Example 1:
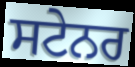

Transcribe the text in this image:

ਸਟੇਨਰ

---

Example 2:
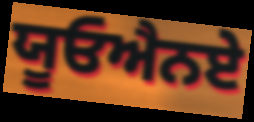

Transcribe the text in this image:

ਯੂਓਐਨਏ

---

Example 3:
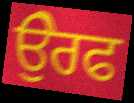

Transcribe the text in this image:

ਉੇਰਫ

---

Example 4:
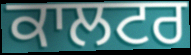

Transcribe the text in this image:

ਕਾਲਟਰ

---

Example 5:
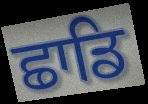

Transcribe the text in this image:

ਛਾਡਿ